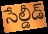
సేల్డీడ్